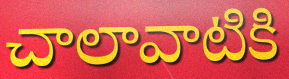
చాలావాటికి